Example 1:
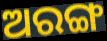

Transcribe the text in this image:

ଅରଙ୍ଗ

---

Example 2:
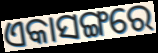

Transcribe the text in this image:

ଏକାସଙ୍ଗରେ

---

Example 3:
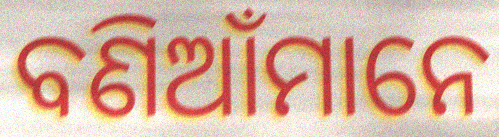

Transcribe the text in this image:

ବଣିଆଁମାନେ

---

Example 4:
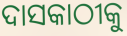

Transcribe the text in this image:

ଦାସକାଠୀକୁ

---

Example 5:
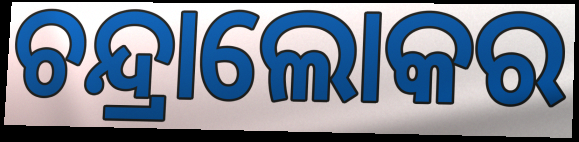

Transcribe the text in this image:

ଚନ୍ଦ୍ରାଲୋକର